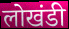
लोखंडी